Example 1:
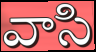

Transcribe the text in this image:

వాసి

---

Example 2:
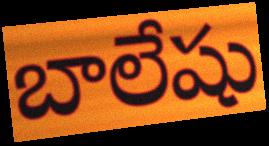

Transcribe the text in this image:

బాలేషు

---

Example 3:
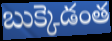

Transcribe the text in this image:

బుక్కెడంత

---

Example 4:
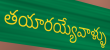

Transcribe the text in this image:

తయారయ్యేవాళ్ళు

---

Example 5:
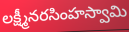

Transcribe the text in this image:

లక్ష్మీనరసింహస్వామి